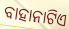
ବାହାନାଟିଏ